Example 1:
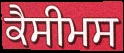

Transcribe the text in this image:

ਕੈਸੀਮਸ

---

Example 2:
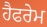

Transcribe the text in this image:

ਹੈਫਰੇਮ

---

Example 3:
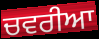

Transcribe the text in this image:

ਚਵਰੀਆ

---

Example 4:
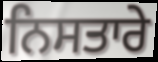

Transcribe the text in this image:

ਨਿਸਤਾਰੇ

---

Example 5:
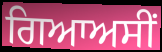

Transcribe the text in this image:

ਗਿਆਅਸੀਂ